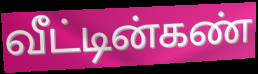
வீட்டின்கண்